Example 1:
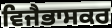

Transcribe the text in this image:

ਵਿਜੈਭਾਸਕਰ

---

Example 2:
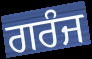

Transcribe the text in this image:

ਗਰੰਜ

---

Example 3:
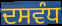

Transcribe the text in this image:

ਦਸਵੰਧ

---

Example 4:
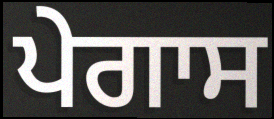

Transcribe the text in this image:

ਪੇਗਾਸ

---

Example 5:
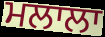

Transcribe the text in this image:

ਮਲਾਲਾ